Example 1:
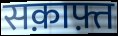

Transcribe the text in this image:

सक़ाफ़्त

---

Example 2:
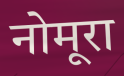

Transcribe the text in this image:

नोमूरा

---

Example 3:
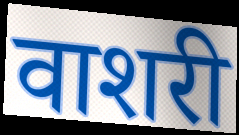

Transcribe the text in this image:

वाशरी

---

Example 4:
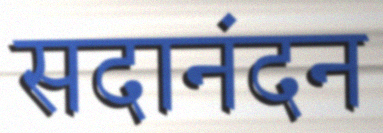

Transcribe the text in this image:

सदानंदन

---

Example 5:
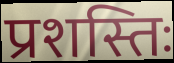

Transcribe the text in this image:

प्रशस्तिः